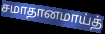
சமாதானமாய்த்